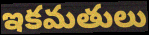
ఇకమతులు